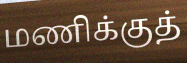
மணிக்குத்